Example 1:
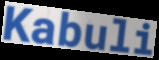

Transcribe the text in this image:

Kabuli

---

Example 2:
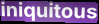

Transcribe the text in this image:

iniquitous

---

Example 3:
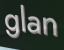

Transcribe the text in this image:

glan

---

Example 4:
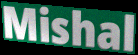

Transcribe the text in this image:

Mishal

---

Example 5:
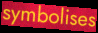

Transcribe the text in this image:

symbolises